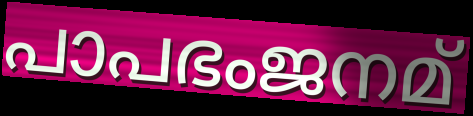
പാപഭംജനമ്